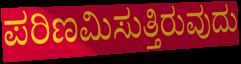
ಪರಿಣಮಿಸುತ್ತಿರುವುದು